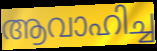
ആവാഹിച്ച